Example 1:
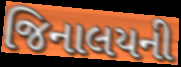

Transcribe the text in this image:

જિનાલયની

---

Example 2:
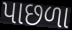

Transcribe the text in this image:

પાછળા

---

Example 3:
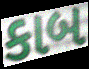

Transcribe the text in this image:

કાબ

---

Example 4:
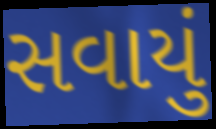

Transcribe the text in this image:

સવાયું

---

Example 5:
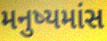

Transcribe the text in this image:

મનુષ્યમાંસ